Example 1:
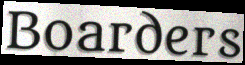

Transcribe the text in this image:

Boarders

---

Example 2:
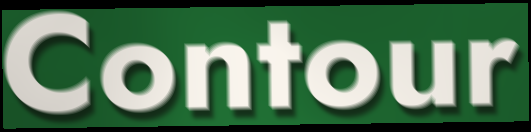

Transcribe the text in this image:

Contour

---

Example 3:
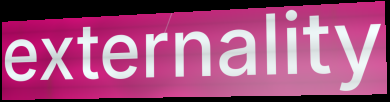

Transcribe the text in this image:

externality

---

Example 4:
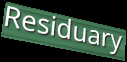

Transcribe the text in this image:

Residuary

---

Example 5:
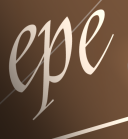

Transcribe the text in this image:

epe